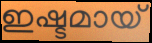
ഇഷ്ടമായ്